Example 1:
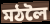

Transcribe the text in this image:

মঠলৈ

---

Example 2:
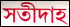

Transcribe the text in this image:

সতীদাহ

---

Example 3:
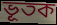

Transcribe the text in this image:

ভূতক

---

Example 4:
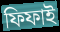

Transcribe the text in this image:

ফিফাই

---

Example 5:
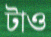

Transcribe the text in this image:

টাও